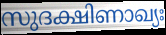
സുദക്ഷിണാഖ്യഃ